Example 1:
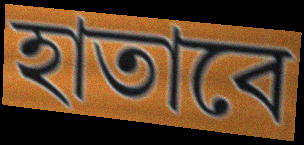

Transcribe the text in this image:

হাতাবে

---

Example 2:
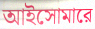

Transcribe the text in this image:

আইসোমারে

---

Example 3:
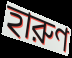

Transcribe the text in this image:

হারুণ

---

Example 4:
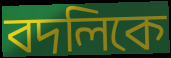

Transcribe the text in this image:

বদলিকে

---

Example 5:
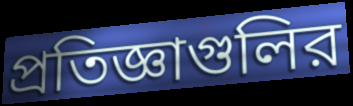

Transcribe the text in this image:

প্রতিজ্ঞাগুলির